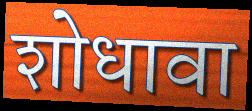
शोधावा